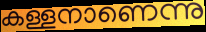
കള്ളനാണെന്നു